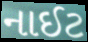
નાઈટ